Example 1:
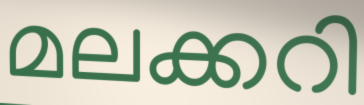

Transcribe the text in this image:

മലക്കറി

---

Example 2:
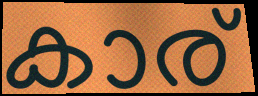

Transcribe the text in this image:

കാര്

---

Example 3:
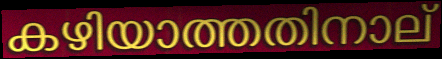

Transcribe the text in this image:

കഴിയാത്തതിനാല്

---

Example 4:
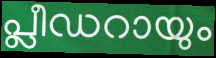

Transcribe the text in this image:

പ്ലീഡറായും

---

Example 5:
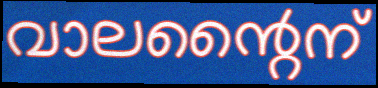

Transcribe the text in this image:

വാലന്റൈന്